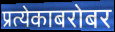
प्रत्येकाबरोबर